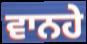
ਵਾਨਹੇ